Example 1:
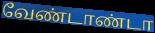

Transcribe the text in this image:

வேண்டாண்டா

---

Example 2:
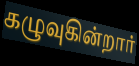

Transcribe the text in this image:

கழுவுகின்றார்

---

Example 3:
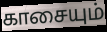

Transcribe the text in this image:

காசையும்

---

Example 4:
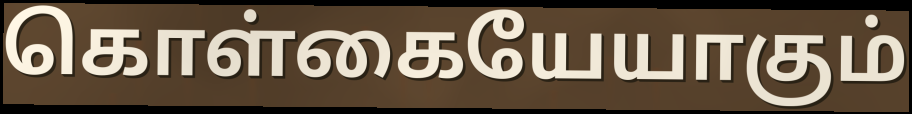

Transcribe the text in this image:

கொள்கையேயாகும்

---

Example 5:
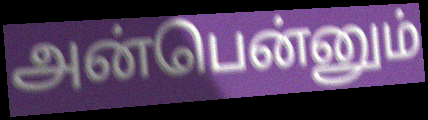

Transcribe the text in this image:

அன்பென்னும்